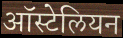
ऑस्टेलियन